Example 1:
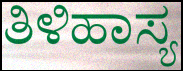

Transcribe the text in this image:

ತಿಳಿಹಾಸ್ಯ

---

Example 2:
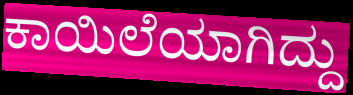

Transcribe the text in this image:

ಕಾಯಿಲೆಯಾಗಿದ್ದು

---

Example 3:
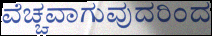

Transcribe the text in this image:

ವೆಚ್ಚವಾಗುವುದರಿಂದ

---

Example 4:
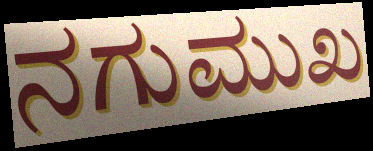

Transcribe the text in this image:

ನಗುಮುಖ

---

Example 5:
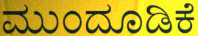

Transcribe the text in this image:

ಮುಂದೂಡಿಕೆ